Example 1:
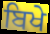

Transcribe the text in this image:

ਬਿਖੇ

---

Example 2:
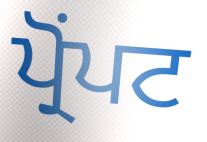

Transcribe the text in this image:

ਪ੍ਰੋਂਪਟ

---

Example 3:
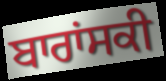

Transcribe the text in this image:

ਬਾਰਾਂਸਕੀ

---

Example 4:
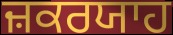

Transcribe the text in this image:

ਜ਼ਕਰਯਾਹ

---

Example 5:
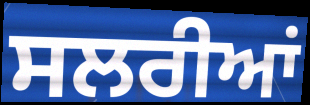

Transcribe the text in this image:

ਸਲਰੀਆਂ